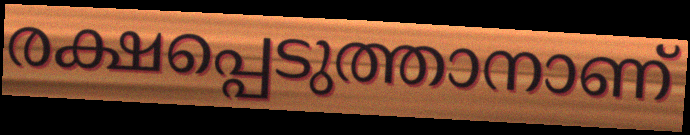
രക്ഷപ്പെടുത്താനാണ്